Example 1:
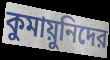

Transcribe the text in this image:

কুমায়ুনিদের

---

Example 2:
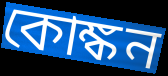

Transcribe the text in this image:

কোঙ্কন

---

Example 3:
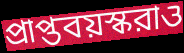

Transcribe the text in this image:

প্রাপ্তবয়স্করাও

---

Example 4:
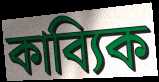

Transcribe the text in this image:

কাব্যিক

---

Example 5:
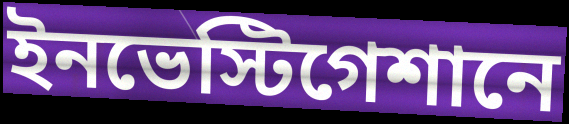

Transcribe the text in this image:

ইনভেস্টিগেশানে